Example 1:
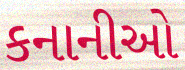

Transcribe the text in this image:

કનાનીઓ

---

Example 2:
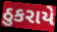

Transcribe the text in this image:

ઠુકરાયે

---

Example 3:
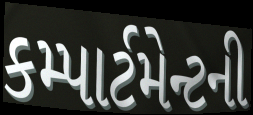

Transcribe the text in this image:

કમ્પાર્ટમેન્ટની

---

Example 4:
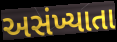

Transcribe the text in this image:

અસંખ્યાતા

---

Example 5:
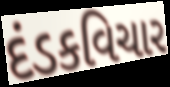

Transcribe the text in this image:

દંડકવિચાર